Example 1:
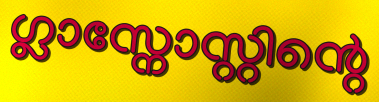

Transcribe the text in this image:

ഗ്ലാസ്നോസ്റ്റിന്റെ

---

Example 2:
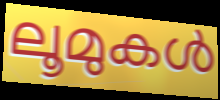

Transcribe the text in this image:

ലൂമുകൾ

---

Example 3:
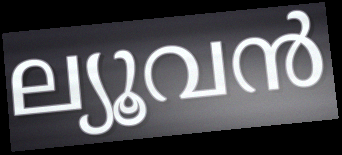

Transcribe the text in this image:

ല്യൂവൻ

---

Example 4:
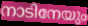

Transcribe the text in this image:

നാടിനേയും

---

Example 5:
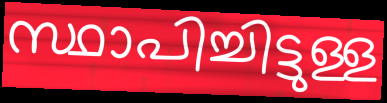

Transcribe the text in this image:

സ്ഥാപിച്ചിട്ടുള്ള